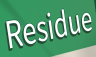
Residue